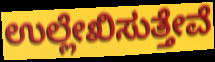
ಉಲ್ಲೇಖಿಸುತ್ತೇವೆ